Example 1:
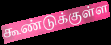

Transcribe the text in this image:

கூண்டுக்குள்ள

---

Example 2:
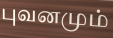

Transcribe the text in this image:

புவனமும்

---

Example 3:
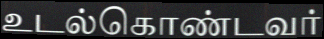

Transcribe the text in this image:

உடல்கொண்டவர்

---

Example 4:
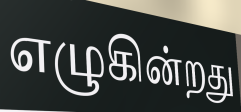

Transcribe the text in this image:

எழுகின்றது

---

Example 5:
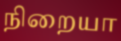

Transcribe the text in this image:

நிறையா